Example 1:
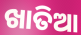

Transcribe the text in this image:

ଖାତିଆ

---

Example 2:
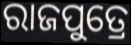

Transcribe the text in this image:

ରାଜପୁତ୍ରେ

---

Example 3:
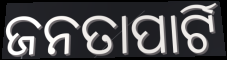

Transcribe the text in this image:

ଜନତାପାର୍ଟି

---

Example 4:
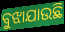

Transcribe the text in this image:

ବୁଝାଯାଉଛି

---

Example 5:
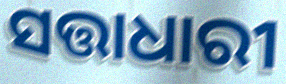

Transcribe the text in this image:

ସତ୍ତାଧାରୀ